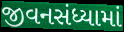
જીવનસંધ્યામાં